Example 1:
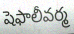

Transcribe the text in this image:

షెఫాలీవర్మ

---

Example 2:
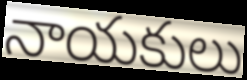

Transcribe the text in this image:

నాయకులు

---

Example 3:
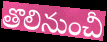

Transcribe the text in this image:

తొలినుంచీ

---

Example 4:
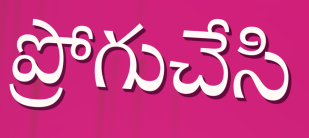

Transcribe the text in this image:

ప్రోగుచేసి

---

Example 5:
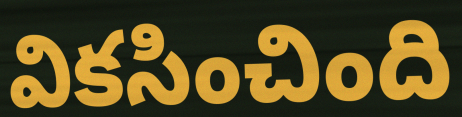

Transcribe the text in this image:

వికసించింది